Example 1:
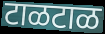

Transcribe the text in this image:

टाळटाळ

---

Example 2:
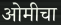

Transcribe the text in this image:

ओमीचा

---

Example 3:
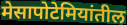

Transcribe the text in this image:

मेसापोटेमियांतील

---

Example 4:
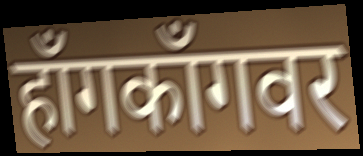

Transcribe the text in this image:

हाँगकाँगवर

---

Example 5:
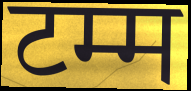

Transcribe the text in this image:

टम्म